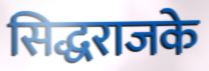
सिद्धराजके